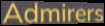
Admirers